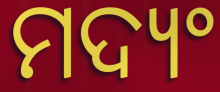
ମଦ୍ୟଂ